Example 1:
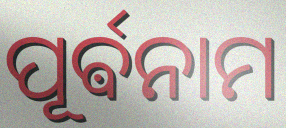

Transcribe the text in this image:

ପୂର୍ଵନାମ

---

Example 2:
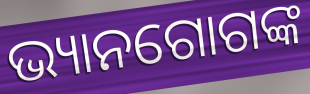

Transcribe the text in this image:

ଭ୍ୟାନଗୋଗଙ୍କ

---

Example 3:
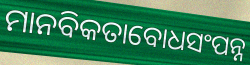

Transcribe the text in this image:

ମାନବିକତାବୋଧସଂପନ୍ନ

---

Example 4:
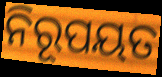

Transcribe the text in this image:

ନିରୂପୟତ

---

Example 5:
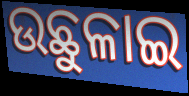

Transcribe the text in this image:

ଉଛୁଳାଇ